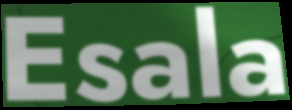
Esala